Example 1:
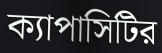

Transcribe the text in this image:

ক্যাপাসিটির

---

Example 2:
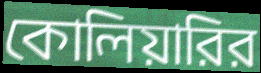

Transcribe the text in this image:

কোলিয়ারির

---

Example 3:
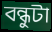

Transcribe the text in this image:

বন্ধুটা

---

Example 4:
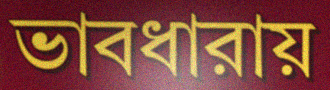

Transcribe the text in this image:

ভাবধারায়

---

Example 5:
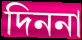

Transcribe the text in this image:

দিননা